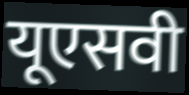
यूएसवी